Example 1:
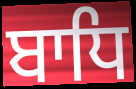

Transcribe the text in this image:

ਬਾਧਿ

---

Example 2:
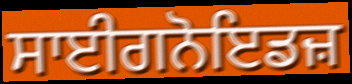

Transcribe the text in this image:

ਸਾਈਗਨੋਇਡਜ਼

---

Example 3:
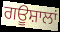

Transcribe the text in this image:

ਗਊਸ਼ਾਲਾਂ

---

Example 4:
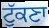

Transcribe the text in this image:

ਟੁੱਕਣਾ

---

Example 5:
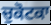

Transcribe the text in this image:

ਚੁਕੋਟਕਾ